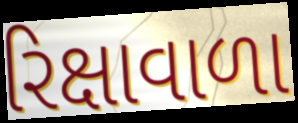
રિક્ષાવાળા